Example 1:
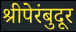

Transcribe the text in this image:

श्रीपेरंबुदूर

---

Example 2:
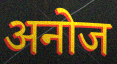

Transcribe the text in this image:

अनोज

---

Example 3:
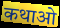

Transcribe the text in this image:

कथाओ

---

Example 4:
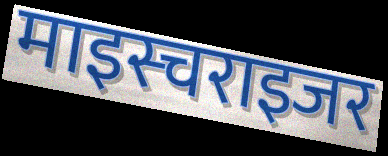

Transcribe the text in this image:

माइस्चराइजर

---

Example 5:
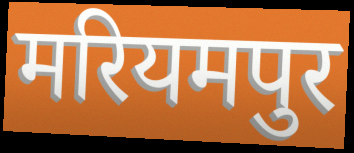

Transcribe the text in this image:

मरियमपुर